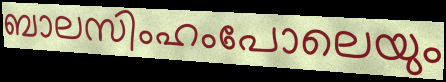
ബാലസിംഹംപോലെയും